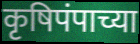
कृषिपंपाच्या